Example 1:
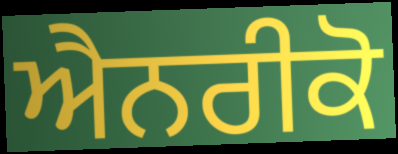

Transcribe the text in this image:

ਐਨਰੀਕੋ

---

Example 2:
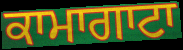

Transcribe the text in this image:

ਕਾਮਾਗਾਟਾ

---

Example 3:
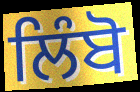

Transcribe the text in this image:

ਲਿੰਬੋ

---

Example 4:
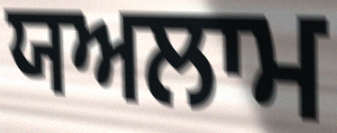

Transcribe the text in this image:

ਯਅਲਾਮ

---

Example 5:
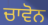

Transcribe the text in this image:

ਚਾਵੋਨ